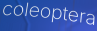
coleoptera